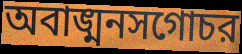
অবাঙ্মনসগোচর